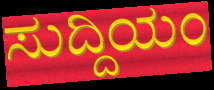
ಸುದ್ದಿಯಂ